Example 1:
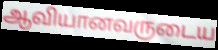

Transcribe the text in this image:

ஆவியானவருடைய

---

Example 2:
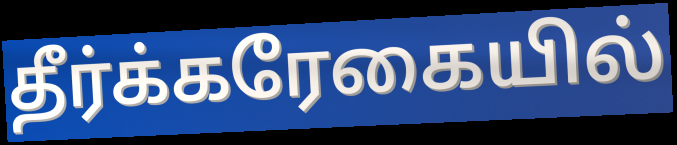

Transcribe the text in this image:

தீர்க்கரேகையில்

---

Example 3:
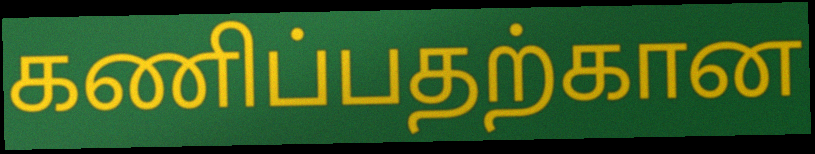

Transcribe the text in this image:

கணிப்பதற்கான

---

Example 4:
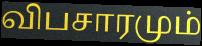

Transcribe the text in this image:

விபசாரமும்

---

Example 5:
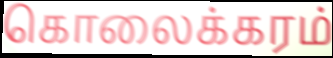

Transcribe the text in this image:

கொலைக்கரம்